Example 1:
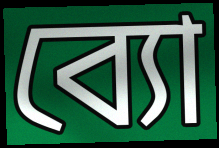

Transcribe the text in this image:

ব্যো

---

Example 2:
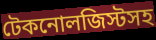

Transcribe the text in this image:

টেকনোলজিস্টসহ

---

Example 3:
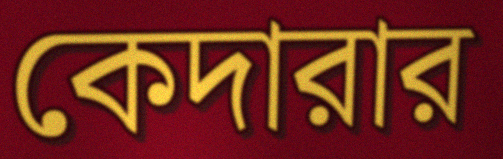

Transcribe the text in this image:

কেদারার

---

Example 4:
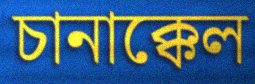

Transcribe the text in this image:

চানাক্কেল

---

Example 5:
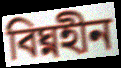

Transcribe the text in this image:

বিঘ্নহীন